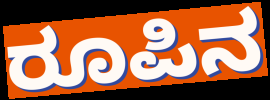
ರೂಪಿನ